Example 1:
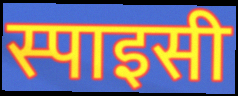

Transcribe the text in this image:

स्पाइसी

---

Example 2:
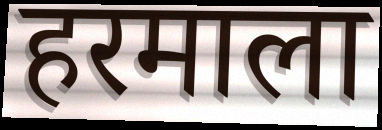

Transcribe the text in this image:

हरमाला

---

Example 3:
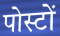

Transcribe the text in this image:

पोस्टों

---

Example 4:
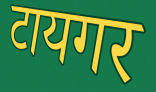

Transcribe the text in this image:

टायगर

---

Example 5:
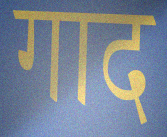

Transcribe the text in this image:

गाद